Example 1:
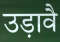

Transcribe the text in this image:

उड़ावै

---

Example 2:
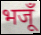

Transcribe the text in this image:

भजूँ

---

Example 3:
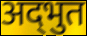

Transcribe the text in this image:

अद्‌भुत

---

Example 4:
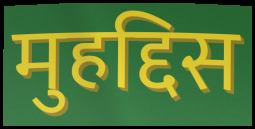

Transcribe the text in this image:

मुहद्दिस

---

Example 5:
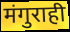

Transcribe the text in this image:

मंगुराही